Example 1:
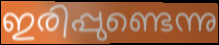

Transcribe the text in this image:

ഇരിപ്പുണ്ടെന്നു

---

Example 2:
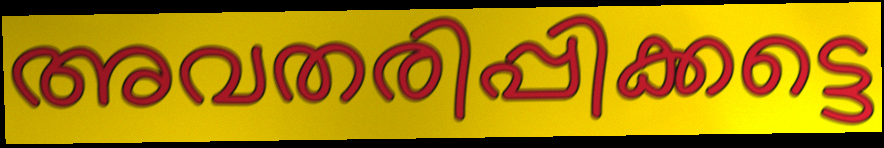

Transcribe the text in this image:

അവതരിപ്പിക്കട്ടെ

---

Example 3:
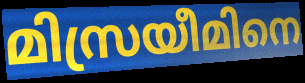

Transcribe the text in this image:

മിസ്രയീമിനെ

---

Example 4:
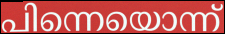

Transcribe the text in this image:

പിന്നെയൊന്ന്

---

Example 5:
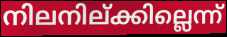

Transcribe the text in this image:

നിലനില്ക്കില്ലെന്ന്